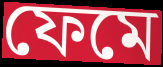
ফেমে